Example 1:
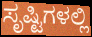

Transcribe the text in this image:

ಸೃಷ್ಟಿಗಳಲ್ಲಿ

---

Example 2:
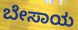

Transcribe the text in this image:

ಬೇಸಾಯ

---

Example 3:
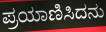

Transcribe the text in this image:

ಪ್ರಯಾಣಿಸಿದನು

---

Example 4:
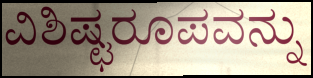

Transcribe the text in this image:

ವಿಶಿಷ್ಟರೂಪವನ್ನು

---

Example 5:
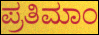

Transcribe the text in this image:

ಪ್ರತಿಮಾಂ